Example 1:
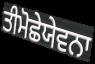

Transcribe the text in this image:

ਤੀਮੋਛੇਯੇਵਨਾ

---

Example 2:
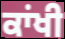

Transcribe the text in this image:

ਕਾਂਖੀ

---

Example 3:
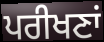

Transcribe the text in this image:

ਪਰੀਖਣਾਂ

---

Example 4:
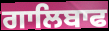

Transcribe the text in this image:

ਗਾਲਿਬਾਫ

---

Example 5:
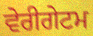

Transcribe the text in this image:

ਵੇਰੀਗੇਟਮ